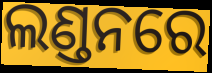
ଲଣ୍ଡନରେ